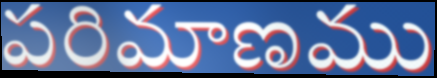
పరిమాణము